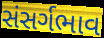
સંસર્ગભાવ